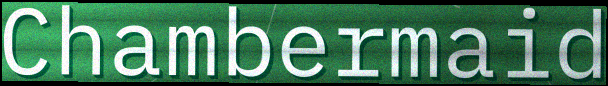
Chambermaid